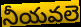
నీయవలె